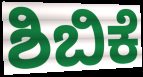
ಶಿಬಿಕೆ